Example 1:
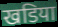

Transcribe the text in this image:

खडिया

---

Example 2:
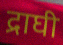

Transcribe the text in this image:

द्राघी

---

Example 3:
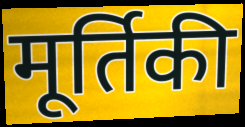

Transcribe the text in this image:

मूर्तिकी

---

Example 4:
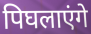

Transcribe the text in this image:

पिघलाएंगे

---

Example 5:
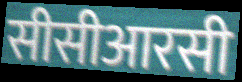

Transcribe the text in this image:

सीसीआरसी